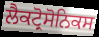
ਲੈਕਟ੍ਰੋਸੋਨਿਕਸ